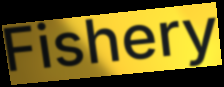
Fishery